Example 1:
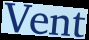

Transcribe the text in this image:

Vent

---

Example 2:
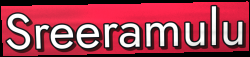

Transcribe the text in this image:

Sreeramulu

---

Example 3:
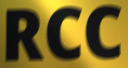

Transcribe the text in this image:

RCC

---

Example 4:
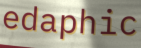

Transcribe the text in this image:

edaphic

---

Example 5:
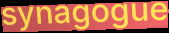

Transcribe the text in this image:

synagogue